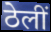
ठेलीं